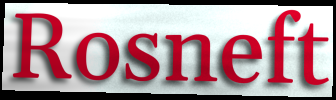
Rosneft